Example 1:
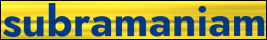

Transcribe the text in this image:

subramaniam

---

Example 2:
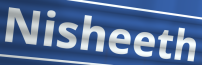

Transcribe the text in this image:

Nisheeth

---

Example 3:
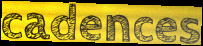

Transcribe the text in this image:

cadences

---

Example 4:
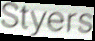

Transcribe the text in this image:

Styers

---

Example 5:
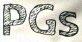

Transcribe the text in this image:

PGs